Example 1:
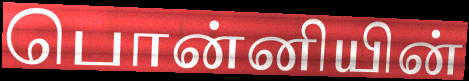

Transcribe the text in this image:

பொன்னியின்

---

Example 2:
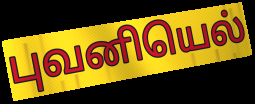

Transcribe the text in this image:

புவனியெல்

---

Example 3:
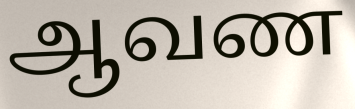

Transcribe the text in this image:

ஆவண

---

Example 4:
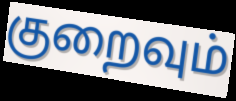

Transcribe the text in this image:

குறைவும்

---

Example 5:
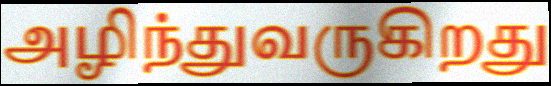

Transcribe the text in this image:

அழிந்துவருகிறது